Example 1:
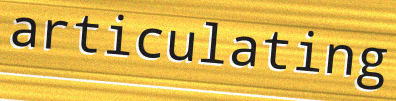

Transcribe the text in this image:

articulating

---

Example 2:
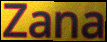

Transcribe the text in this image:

Zana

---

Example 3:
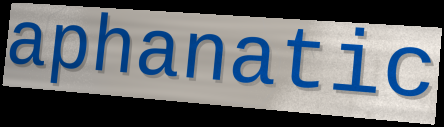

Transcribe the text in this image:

aphanatic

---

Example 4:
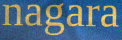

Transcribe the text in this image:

nagara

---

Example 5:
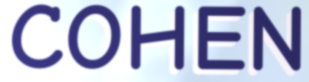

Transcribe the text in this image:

COHEN